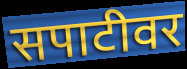
सपाटीवर